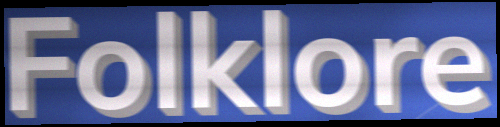
Folklore